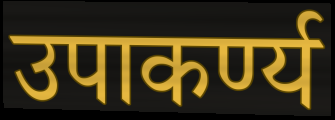
उपाकर्ण्य